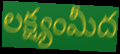
లక్ష్యంమీద